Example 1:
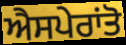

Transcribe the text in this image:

ਐਸਪੇਰਾਂਤੋ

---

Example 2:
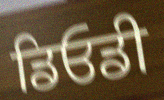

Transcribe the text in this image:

ਡਿਓਡੀ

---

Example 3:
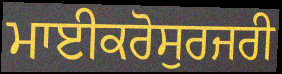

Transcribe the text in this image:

ਮਾਈਕਰੋਸੁਰਜਰੀ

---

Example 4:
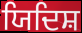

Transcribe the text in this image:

ਯਿਦਿਸ਼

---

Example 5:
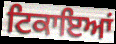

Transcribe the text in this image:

ਟਿਕਾਇਆਂ